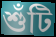
শুঁটি